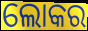
ଲୋକର